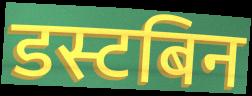
डस्टबिन